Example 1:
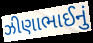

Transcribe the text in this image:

ઝીણાભાઈનું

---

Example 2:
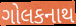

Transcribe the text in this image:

ગોલકનાથ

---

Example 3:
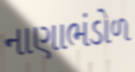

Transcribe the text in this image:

નાણાભંડોળ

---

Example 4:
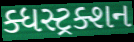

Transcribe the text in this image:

ક્ધસ્ટ્રક્શન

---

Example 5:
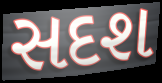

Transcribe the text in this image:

સદશ